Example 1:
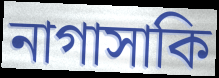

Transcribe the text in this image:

নাগাসাকি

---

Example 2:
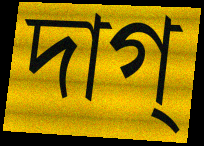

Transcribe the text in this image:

দাগ্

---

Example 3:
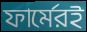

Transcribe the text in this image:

ফার্মেরই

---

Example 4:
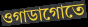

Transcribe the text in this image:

ওগাডাগোতে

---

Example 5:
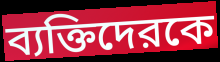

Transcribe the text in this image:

ব্যক্তিদেরকে